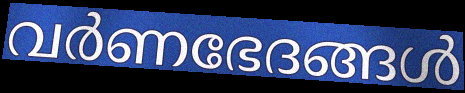
വർണഭേദങ്ങൾ